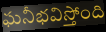
ఘనీభవిస్తోంది